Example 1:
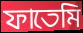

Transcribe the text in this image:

ফাতেমি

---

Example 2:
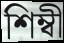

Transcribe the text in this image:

শিম্বী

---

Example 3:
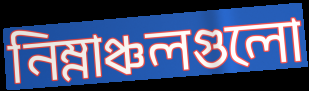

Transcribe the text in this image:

নিম্নাঞ্চলগুলো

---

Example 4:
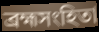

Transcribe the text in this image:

ব্রহ্মসংহিতা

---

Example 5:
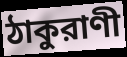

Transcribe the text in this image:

ঠাকুরাণী